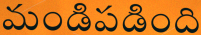
మండిపడింది